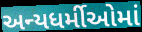
અન્યધર્મીઓમાં